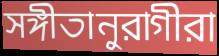
সঙ্গীতানুরাগীরা